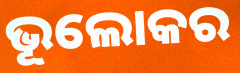
ଭୂଲୋକର